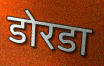
डोरडा